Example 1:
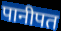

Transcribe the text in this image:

पानीपत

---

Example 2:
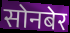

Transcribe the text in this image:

सोनबेर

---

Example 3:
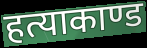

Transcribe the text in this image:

हत्याकाण्ड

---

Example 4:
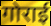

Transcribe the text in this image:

गोराई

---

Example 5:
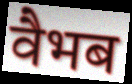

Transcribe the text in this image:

वैभब